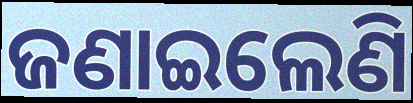
ଜଣାଇଲେଣି